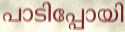
പാടിപ്പോയി